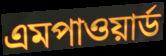
এমপাওয়ার্ড